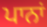
ਪਾਨਾਂ